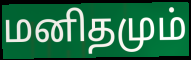
மனிதமும்